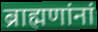
ब्राह्मणांनां